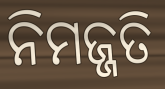
ନିମଜ୍ଜତି